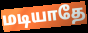
மடியாதே